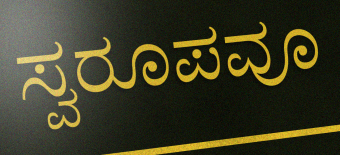
ಸ್ವರೂಪವೂ